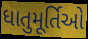
ધાતુમૂર્તિઓ